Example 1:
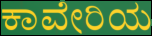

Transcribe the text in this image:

ಕಾವೇರಿಯ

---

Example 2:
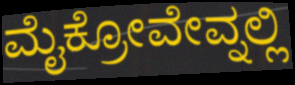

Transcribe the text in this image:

ಮೈಕ್ರೋವೇವ್ನಲ್ಲಿ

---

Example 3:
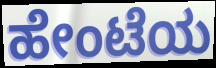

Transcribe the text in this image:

ಹೇಂಟೆಯ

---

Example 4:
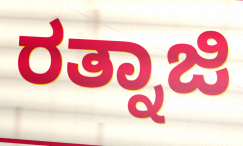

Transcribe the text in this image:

ರತ್ನಾಜಿ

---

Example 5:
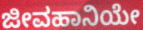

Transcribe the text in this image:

ಜೀವಹಾನಿಯೇ